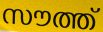
സൗത്ത്